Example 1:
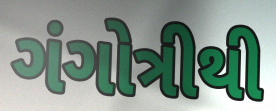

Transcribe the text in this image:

ગંગોત્રીથી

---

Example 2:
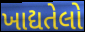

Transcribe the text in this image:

ખાદ્યતેલો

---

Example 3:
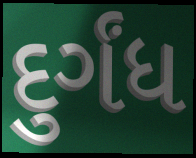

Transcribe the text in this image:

દુર્ગંધ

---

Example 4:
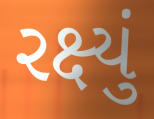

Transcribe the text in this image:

રક્ષ્યું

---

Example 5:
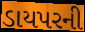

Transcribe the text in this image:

ડાયપરની